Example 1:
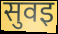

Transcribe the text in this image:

सुवइ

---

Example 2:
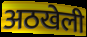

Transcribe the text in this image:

अठखेली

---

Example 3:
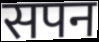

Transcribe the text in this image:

सपन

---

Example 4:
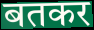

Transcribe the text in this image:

बतकर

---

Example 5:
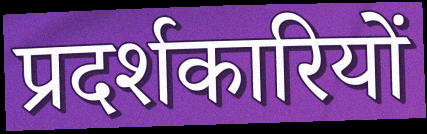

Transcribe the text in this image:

प्रदर्शकारियों